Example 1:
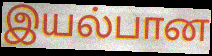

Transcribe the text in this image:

இயல்பான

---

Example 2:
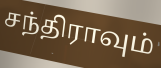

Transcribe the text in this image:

சந்திராவும்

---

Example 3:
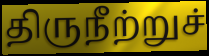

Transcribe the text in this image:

திருநீற்றுச்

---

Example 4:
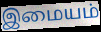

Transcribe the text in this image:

இமையம்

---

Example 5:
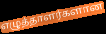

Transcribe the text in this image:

எழுத்தாளர்களான